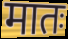
मातः